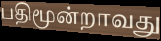
பதிமூன்றாவது